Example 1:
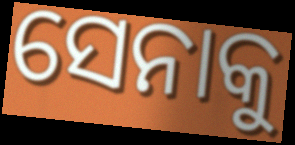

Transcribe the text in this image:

ସେନାକୁ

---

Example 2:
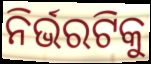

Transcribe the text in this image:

ନିର୍ଭରଟିକୁ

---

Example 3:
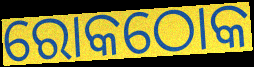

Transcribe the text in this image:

ରୋକଠୋକ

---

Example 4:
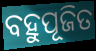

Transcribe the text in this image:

ବହୁପୂଜିତ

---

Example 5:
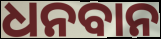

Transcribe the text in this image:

ଧନବାନ